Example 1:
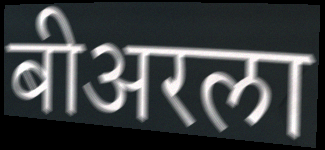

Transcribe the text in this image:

बीअरला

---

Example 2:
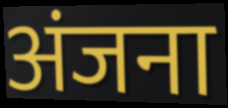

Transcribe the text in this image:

अंजना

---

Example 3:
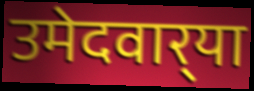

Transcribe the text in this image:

उमेदवार्‍या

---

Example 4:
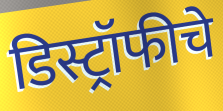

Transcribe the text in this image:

डिस्ट्रॉफीचे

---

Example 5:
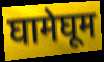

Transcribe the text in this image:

घामेघूम